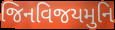
જિનવિજયમુનિ